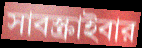
সাবস্ক্রাইবার